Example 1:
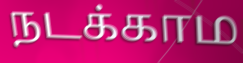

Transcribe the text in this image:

நடக்காம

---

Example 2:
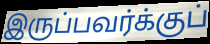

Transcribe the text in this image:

இருப்பவர்க்குப்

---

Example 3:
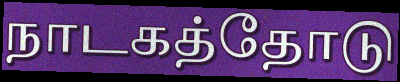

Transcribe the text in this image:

நாடகத்தோடு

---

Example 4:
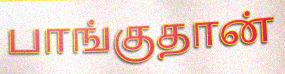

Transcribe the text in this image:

பாங்குதான்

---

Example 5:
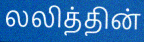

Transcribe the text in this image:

லலித்தின்